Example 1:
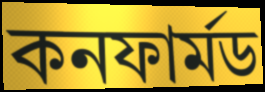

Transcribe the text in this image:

কনফার্মড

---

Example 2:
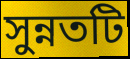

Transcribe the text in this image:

সুন্নতটি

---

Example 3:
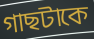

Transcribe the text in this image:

গাছটাকে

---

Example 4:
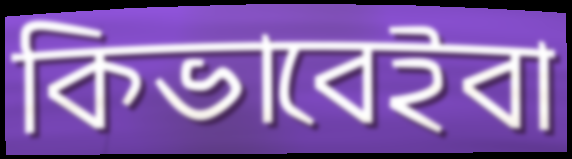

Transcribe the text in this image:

কিভাবেইবা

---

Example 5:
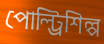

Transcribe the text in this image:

পোল্ট্রিশিল্প